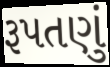
રૂપતણું